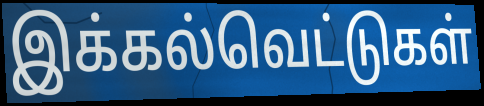
இக்கல்வெட்டுகள்